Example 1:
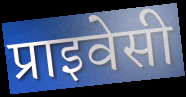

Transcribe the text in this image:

प्राइवेसी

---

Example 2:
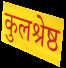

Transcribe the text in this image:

कुलश्रेष्ठ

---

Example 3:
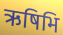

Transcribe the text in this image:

ऋषिभि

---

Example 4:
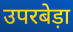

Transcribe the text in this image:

उपरबेड़ा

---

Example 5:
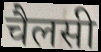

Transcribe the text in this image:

चैलसी